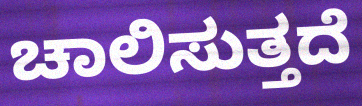
ಚಾಲಿಸುತ್ತದೆ